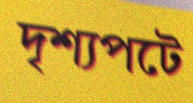
দৃশ্যপটে